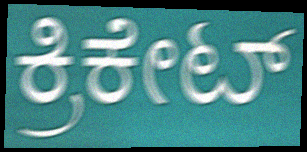
ಕ್ರಿಕೇಟ್